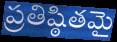
ప్రతిష్ఠితమై